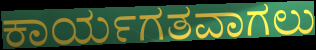
ಕಾರ್ಯಗತವಾಗಲು